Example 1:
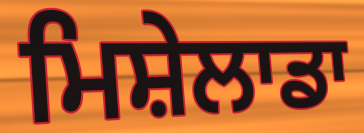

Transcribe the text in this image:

ਮਿਸ਼ੇਲਾਡਾ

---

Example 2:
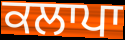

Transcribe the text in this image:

ਕਲਾਪਾ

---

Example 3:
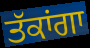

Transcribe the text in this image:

ਤੱਕਾਂਗਾ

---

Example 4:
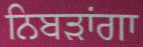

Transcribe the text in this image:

ਨਿਬੜਾਂਗਾ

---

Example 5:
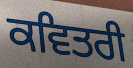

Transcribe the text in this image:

ਕਵਿਤਰੀ